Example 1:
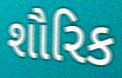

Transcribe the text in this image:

શૌરિક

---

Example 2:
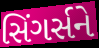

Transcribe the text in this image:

સિંગર્સને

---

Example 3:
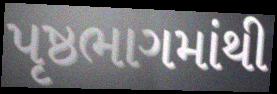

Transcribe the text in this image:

પૃષ્ઠભાગમાંથી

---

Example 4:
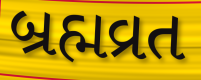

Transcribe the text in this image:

બ્રહ્મવ્રત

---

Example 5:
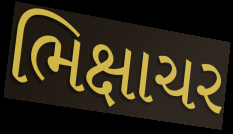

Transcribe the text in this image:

ભિક્ષાચર